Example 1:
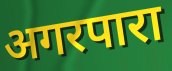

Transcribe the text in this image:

अगरपारा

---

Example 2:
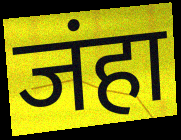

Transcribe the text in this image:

जंहा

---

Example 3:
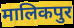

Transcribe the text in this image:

मालिकपुर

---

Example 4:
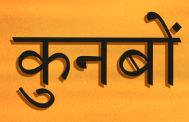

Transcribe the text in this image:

कुनबों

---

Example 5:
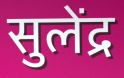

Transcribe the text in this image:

सुलेंद्र